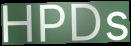
HPDs